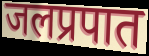
जलप्रपात